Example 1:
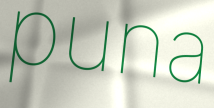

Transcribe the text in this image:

puna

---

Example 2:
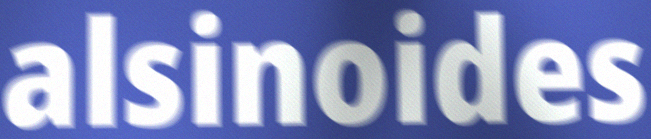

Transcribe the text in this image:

alsinoides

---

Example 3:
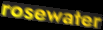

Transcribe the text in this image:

rosewater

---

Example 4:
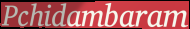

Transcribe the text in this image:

Pchidambaram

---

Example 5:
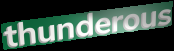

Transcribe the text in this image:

thunderous